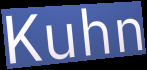
Kuhn